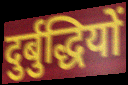
दुर्बुद्धियों